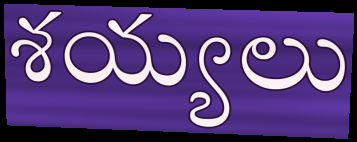
శయ్యలు